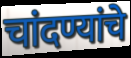
चांदण्यांचे